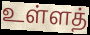
உள்ளத்